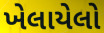
ખેલાયેલો